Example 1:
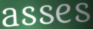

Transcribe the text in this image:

asses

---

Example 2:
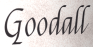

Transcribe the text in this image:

Goodall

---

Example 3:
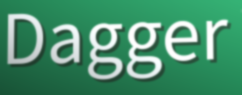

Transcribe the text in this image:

Dagger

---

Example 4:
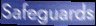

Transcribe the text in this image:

Safeguards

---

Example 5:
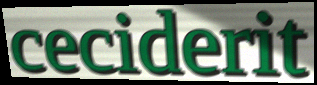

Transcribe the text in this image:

ceciderit